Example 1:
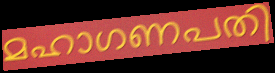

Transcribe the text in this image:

മഹാഗണപതി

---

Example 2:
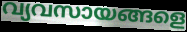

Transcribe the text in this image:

വ്യവസായങ്ങളെ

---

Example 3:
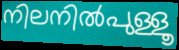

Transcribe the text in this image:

നിലനിൽപുള്ളൂ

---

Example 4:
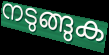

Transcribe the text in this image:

നടുങ്ങുക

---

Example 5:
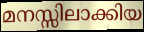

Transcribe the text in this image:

മനസ്സിലാക്കിയ